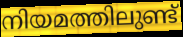
നിയമത്തിലുണ്ട്